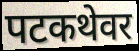
पटकथेवर